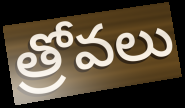
త్రోవలు